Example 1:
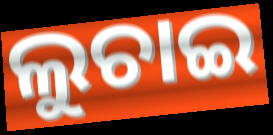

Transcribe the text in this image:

ଲୁଚାଇ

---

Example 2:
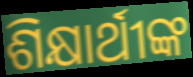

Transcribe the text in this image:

ଶିକ୍ଷାର୍ଥୀଙ୍କ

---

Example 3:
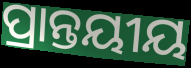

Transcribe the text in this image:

ପ୍ରାନ୍ତୟୀୟ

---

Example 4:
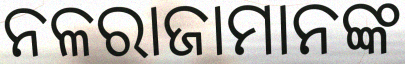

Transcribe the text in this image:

ନଳରାଜାମାନଙ୍କ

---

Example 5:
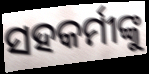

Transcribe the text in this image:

ସହକର୍ମୀଙ୍କୁ